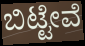
ಬಿಟ್ಟೇವೆ